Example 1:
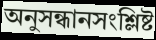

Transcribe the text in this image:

অনুসন্ধানসংশ্লিষ্ট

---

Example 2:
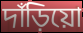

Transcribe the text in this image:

দাঁড়িয়ো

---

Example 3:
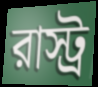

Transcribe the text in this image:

রাস্ট্র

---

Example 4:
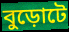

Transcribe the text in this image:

বুড়োটে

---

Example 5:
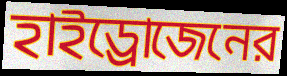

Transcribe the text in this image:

হাইড্রোজেনের